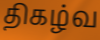
திகழ்வ